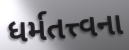
ધર્મતત્ત્વના